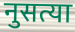
नुसत्या